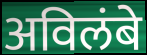
अविलंबे